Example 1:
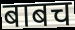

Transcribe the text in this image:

बाबच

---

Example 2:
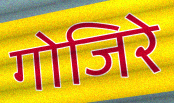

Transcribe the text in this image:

गोजिरे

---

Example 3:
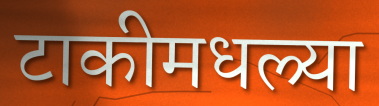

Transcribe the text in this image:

टाकीमधल्या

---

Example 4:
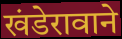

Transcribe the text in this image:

खंडेरावाने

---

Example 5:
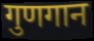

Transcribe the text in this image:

गुणगान